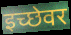
इच्छेवर